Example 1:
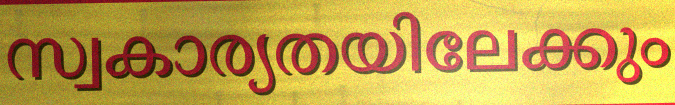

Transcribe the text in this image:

സ്വകാര്യതയിലേക്കും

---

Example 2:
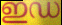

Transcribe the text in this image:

ഇഡ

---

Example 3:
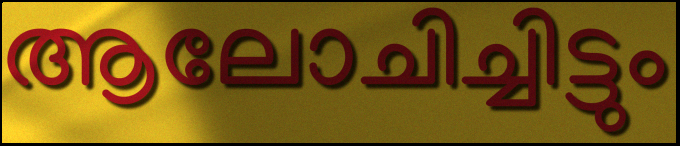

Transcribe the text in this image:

ആലോചിച്ചിട്ടും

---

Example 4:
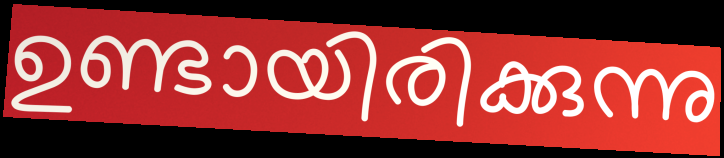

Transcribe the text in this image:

ഉണ്ടായിരിക്കുന്നു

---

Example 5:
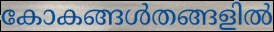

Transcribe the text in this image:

കോകങ്ങൾതങ്ങളിൽ